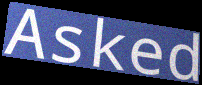
Asked